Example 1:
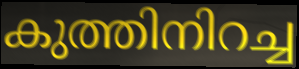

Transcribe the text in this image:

കുത്തിനിറച്ച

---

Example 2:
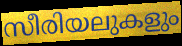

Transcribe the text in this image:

സീരിയലുകളും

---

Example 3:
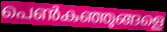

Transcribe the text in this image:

പെൺകുഞ്ഞുങ്ങളെ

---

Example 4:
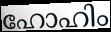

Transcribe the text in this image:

ഹോഹിം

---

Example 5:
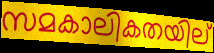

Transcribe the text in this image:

സമകാലികതയില്